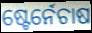
ଷ୍ଟେର୍ନେଚାଷ